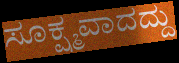
ಸೂಕ್ಷ್ಮವಾದದ್ದು